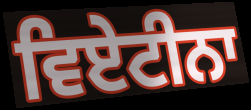
ਵਿਏਟੀਨਾ